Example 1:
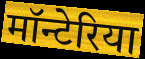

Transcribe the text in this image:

मॉन्टेरिया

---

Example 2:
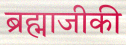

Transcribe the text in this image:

ब्रह्माजीकी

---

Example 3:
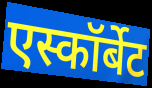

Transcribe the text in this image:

एस्कॉर्बेट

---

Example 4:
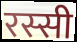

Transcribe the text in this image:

रस्‍सी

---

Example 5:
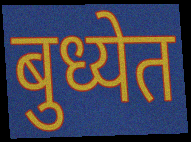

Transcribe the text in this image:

बुध्येत